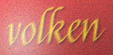
volken